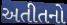
અતીતનો